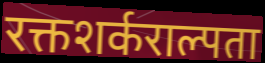
रक्तशर्कराल्पता